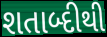
શતાબ્દીથી